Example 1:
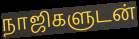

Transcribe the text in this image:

நாஜிகளுடன்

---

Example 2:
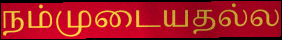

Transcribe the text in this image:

நம்முடையதல்ல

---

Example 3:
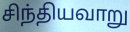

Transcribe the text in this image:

சிந்தியவாறு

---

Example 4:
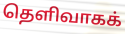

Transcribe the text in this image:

தெளிவாகக்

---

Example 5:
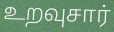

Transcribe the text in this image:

உறவுசார்